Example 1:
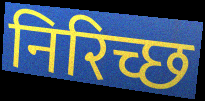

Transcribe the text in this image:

निरिच्छ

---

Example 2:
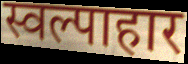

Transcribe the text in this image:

स्वल्पाहार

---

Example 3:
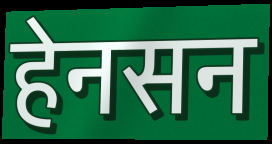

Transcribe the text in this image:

हेनसन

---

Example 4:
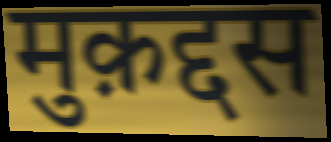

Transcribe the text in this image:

मुक़द्दस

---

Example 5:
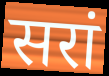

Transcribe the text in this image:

सरां